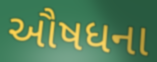
ઔષધના